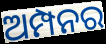
ଅମ୍ପନର